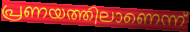
പ്രണയത്തിലാണെന്ന്